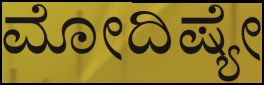
ಮೋದಿಷ್ಯೇ